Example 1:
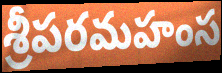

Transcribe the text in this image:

శ్రీపరమహంస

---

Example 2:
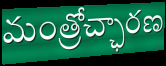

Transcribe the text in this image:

మంత్రోచ్ఛారణ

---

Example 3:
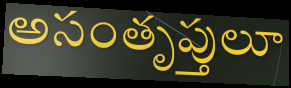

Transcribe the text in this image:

అసంతృప్తులూ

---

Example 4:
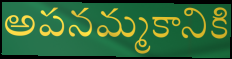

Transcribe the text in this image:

అపనమ్మకానికి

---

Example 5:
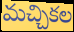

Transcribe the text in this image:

మచ్చికల